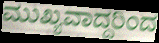
ಮುಖ್ಯವಾದ್ದರಿಂದ